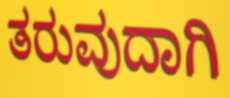
ತರುವುದಾಗಿ